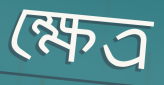
ক্ষেত্র